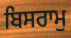
ਬਿਸਰਾਮੁ